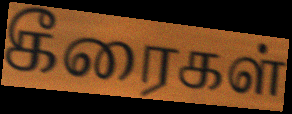
கீரைகள்